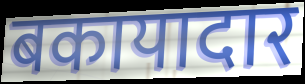
बकायादार